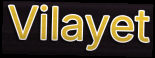
Vilayet